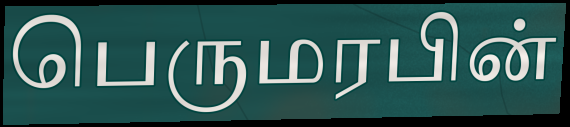
பெருமரபின்